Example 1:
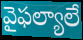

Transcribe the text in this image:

వైఫల్యాలే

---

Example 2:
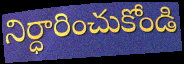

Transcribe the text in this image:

నిర్ధారించుకోండి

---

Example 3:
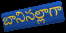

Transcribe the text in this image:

బానిసల్లాగా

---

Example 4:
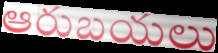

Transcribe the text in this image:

ఆరుబయలు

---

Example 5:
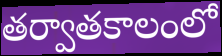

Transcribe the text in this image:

తర్వాతకాలంలో